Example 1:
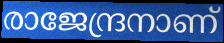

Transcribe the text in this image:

രാജേന്ദ്രനാണ്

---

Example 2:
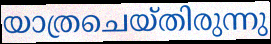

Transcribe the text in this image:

യാത്രചെയ്തിരുന്നു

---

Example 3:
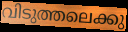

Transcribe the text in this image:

വിടുത്തലെക്കു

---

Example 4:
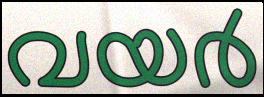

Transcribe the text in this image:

വയർ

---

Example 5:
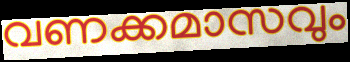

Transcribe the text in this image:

വണക്കമാസവും